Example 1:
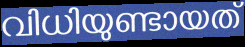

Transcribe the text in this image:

വിധിയുണ്ടായത്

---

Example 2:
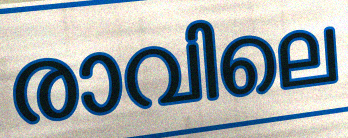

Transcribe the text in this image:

രാവിലെ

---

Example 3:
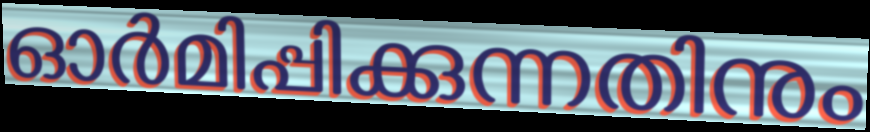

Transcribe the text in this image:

ഓർമിപ്പിക്കുന്നതിനും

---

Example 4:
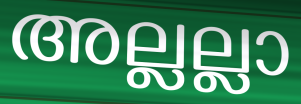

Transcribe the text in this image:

അല്ലല്ലാ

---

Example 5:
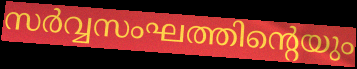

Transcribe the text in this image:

സർവ്വസംഘത്തിന്റെയും